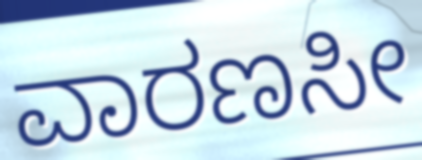
ವಾರಣಸೀ